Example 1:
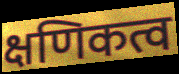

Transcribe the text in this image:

क्षणिकत्व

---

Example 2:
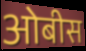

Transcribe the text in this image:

ओबीस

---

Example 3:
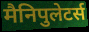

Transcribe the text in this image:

मैनिपुलेटर्स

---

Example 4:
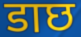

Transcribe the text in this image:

डाछ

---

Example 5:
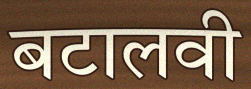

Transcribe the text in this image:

बटालवी